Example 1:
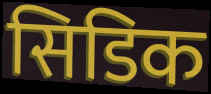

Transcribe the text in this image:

सिडिक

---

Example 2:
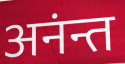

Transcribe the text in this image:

अनंन्त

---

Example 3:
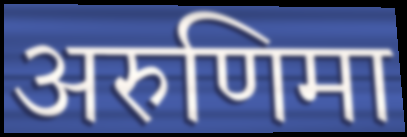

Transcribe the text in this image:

अरुणिमा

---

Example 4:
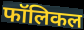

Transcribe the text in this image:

फॉलिकल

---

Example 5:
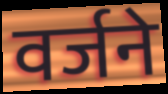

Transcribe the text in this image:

वर्जने